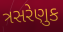
ત્રસરેણુક